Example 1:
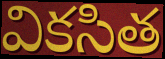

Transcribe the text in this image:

వికసిత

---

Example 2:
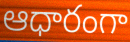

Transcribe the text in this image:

ఆధారంగా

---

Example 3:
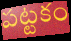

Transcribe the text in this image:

పట్టకం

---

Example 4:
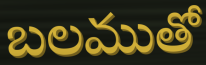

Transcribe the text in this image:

బలముతో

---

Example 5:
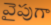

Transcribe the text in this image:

వైపుగా